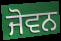
ਜੋਵਨ